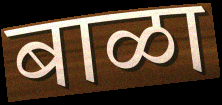
बाळा